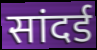
सांदर्ड